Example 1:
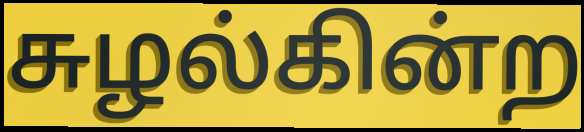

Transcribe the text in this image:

சுழல்கின்ற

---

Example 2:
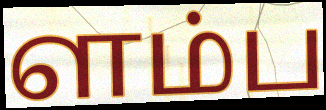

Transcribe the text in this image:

ளம்ப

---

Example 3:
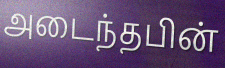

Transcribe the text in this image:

அடைந்தபின்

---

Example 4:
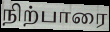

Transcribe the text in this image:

நிற்பாரை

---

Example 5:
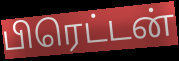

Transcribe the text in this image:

பிரெட்டன்